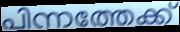
പിന്നത്തേക്ക്